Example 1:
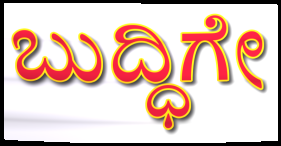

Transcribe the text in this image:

ಬುದ್ಧಿಗೇ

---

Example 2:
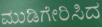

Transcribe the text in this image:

ಮುಡಿಗೇರಿಸಿದ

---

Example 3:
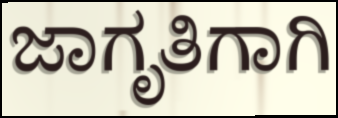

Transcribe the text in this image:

ಜಾಗೃತಿಗಾಗಿ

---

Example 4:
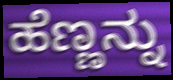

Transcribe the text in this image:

ಹೆಣ್ಣನ್ನು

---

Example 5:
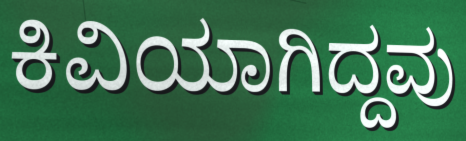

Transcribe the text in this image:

ಕಿವಿಯಾಗಿದ್ದವು